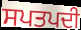
ਸਪਤਪਦੀ